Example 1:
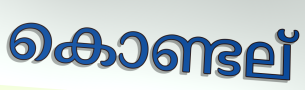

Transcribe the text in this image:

കൊണ്ടല്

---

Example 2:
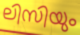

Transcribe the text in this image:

ലിസിയും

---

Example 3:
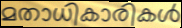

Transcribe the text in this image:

മതാധികാരികൾ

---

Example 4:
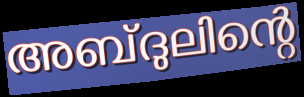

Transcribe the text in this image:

അബ്ദുലിന്റെ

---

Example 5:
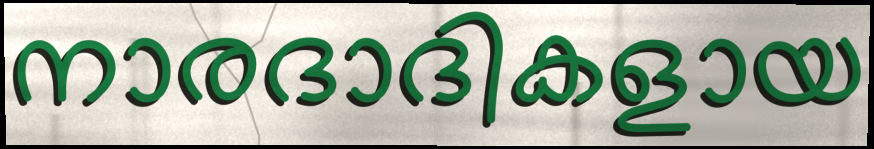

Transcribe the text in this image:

നാരദാദികളായ